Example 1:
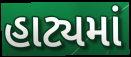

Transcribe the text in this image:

હાટ્યમાં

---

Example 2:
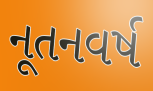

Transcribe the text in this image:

નૂતનવર્ષ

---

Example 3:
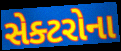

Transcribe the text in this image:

સેક્ટરોના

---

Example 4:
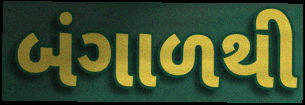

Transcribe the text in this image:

બંગાળથી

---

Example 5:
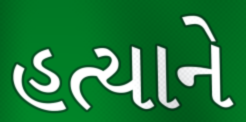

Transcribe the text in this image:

હત્યાને